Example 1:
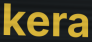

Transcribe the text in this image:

kera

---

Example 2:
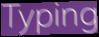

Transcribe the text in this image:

Typing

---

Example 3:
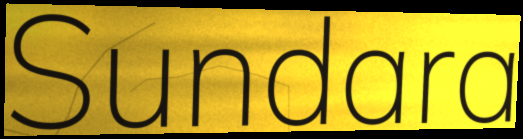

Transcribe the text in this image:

Sundara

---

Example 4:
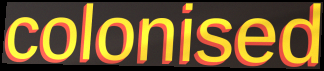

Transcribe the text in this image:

colonised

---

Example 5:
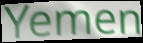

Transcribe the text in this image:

Yemen